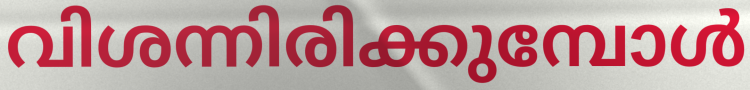
വിശന്നിരിക്കുമ്പോൾ